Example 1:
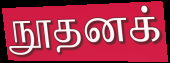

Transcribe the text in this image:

நூதனக்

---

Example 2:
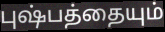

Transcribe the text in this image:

புஷ்பத்தையும்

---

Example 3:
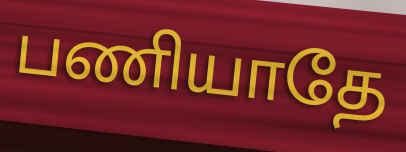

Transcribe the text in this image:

பணியாதே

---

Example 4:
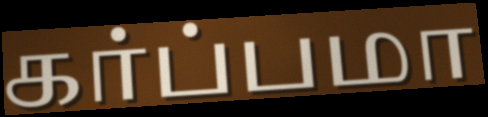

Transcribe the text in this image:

கர்ப்பமா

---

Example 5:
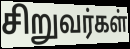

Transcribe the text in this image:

சிறுவர்கள்